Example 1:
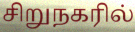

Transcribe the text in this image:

சிறுநகரில்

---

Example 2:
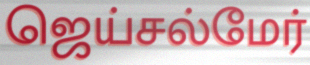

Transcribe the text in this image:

ஜெய்சல்மேர்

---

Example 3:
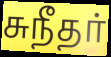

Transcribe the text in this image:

சுநீதர்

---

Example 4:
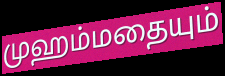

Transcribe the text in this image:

முஹம்மதையும்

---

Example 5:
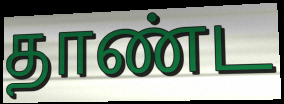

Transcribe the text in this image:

தாண்ட